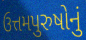
ઉત્તમપુરુષોનું